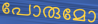
പോരുമോ